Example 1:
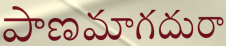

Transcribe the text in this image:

పాణమాగదురా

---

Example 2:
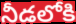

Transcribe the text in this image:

నీడలోకి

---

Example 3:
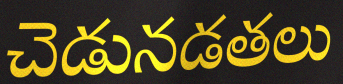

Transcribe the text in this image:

చెడునడతలు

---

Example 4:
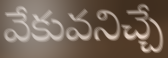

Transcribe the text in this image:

వేకువనిచ్చే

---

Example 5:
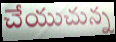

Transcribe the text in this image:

చేయుచున్న